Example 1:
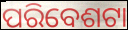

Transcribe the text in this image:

ପରିବେଶଟା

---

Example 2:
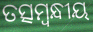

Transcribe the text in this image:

ତତ୍ସମ୍ବନ୍ଧୀୟ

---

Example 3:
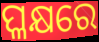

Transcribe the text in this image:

ପ୍ଳକ୍ଷରେ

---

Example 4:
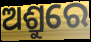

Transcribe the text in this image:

ଅଶ୍ରୁରେ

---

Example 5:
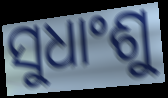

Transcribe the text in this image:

ସୁଧାଂଶୁ